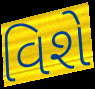
વિશે